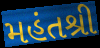
મહંતશ્રી